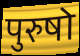
पुरुषो